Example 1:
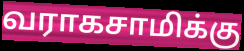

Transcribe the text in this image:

வராகசாமிக்கு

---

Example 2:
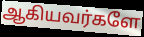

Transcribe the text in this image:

ஆகியவர்களே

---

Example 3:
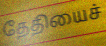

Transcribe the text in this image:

தேதியைச்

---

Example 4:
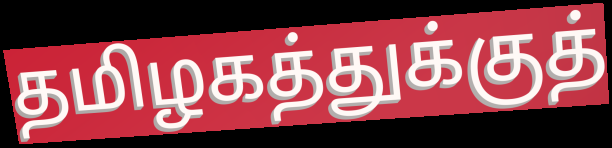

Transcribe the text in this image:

தமிழகத்துக்குத்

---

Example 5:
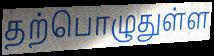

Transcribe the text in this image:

தற்பொழுதுள்ள